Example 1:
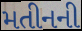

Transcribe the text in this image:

મતીનની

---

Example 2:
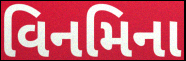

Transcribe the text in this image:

વિનમિના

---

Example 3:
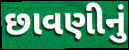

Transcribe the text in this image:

છાવણીનું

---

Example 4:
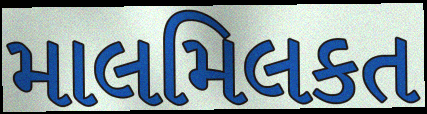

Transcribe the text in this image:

માલમિલકત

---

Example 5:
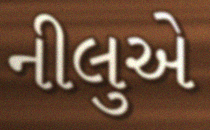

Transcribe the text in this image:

નીલુએ